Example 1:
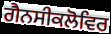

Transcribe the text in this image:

ਗੈਨਸੀਕਲੋਵਿਰ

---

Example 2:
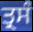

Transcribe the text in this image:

ਤ੍ਰਸੰ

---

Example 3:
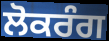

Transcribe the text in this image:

ਲੋਕਰੰਗ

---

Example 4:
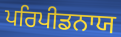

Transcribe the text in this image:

ਪਰਿਪੀਡਨਾਯ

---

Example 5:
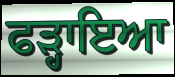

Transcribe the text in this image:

ਫੜ੍ਹਾਇਆ